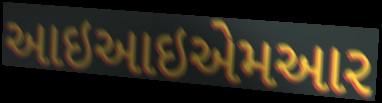
આઇઆઇએમઆર